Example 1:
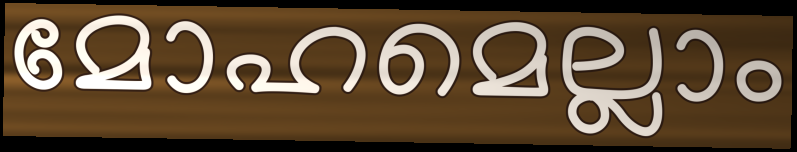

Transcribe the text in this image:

മോഹമെല്ലാം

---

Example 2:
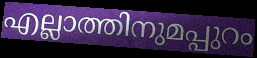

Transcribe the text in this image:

എല്ലാത്തിനുമപ്പുറം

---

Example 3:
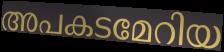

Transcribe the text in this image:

അപകടമേറിയ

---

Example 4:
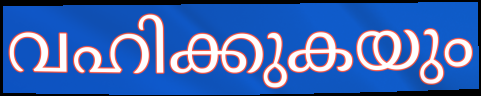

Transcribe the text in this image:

വഹിക്കുകയും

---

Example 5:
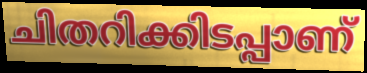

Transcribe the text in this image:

ചിതറിക്കിടപ്പാണ്